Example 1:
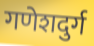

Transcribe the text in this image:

गणेशदुर्ग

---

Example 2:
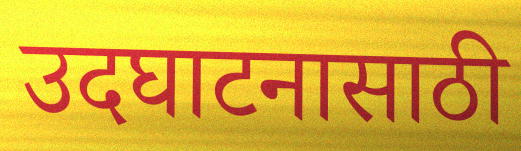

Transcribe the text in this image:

उदघाटनासाठी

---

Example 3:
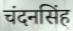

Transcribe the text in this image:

चंदनसिंह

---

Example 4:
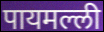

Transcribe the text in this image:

पायमल्ली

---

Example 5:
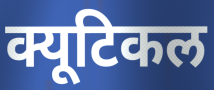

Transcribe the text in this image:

क्यूटिकल